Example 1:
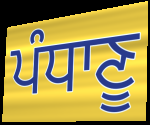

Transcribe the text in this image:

ਪੰਧਾਣੂ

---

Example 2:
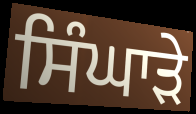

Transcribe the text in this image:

ਸਿੰਘਾੜੇ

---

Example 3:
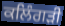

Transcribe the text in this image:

ਕਲਿੰਗੜੀ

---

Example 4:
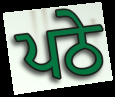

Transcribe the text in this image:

ਪਠੇ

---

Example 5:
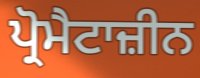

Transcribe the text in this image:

ਪ੍ਰੋਮੈਟਾਜ਼ੀਨ